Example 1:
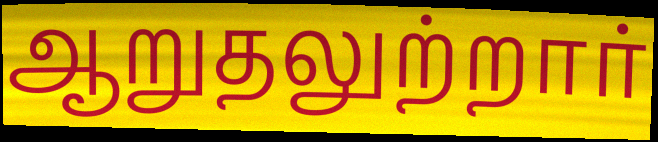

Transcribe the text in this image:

ஆறுதலுற்றார்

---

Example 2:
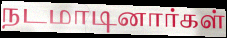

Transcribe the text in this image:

நடமாடினார்கள்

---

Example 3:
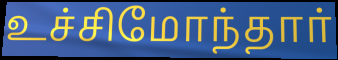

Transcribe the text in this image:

உச்சிமோந்தார்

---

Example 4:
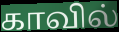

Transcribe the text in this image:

காவில்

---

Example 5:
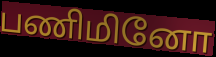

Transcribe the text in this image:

பணிமினோ